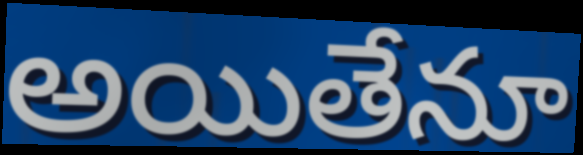
అయితేనూ